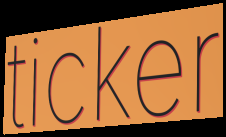
ticker